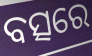
ବତ୍ସରେ